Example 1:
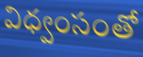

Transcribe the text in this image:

విధ్వంసంతో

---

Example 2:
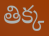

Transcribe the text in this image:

తిక్క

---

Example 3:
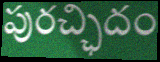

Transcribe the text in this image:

పురచ్ఛిదం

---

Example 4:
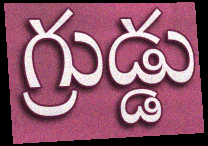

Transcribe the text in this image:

గ్రుడ్డు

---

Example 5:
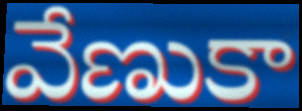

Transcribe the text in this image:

వేణుకా